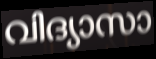
വിദ്യാസാ